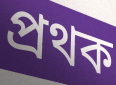
প্রথক